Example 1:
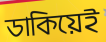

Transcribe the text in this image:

ডাকিয়েই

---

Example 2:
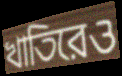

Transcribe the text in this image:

খাতিরেও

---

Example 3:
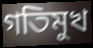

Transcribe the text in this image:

গতিমুখ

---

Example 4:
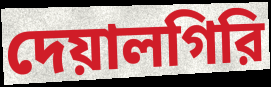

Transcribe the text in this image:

দেয়ালগিরি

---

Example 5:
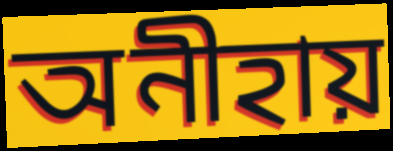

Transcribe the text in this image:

অনীহায়